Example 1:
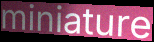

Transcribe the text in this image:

miniature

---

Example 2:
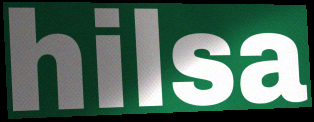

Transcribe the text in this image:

hilsa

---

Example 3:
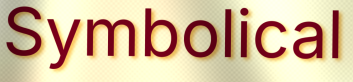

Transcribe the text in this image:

Symbolical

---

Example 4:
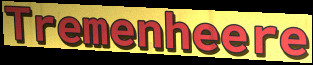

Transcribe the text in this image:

Tremenheere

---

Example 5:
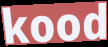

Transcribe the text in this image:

kood